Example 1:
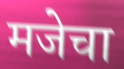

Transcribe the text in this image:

मजेचा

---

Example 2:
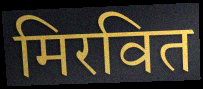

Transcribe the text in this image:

मिरवित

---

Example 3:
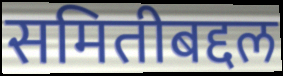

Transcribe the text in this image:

समितीबद्दल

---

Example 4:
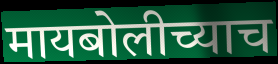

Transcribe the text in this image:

मायबोलीच्याच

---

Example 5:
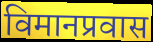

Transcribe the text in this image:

विमानप्रवास